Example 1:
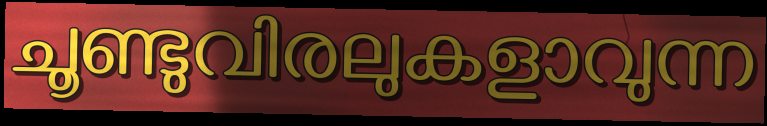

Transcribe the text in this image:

ചൂണ്ടുവിരലുകളാവുന്ന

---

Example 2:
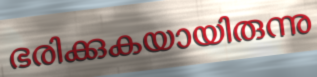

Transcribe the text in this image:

ഭരിക്കുകയായിരുന്നു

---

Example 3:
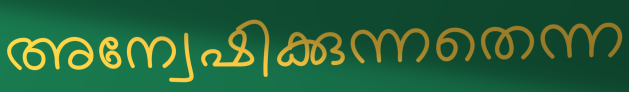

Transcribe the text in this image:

അന്വേഷിക്കുന്നതെന്ന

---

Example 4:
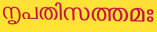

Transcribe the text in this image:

നൃപതിസത്തമഃ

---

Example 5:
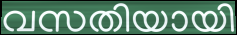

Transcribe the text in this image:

വസതിയായി